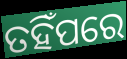
ତହିଁପରେ